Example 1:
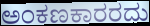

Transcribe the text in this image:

ಅಂಕಣಕಾರರದು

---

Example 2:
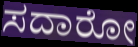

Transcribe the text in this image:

ಸದಾರೋ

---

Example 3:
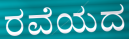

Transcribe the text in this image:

ರವೆಯದ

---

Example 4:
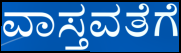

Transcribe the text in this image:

ವಾಸ್ತವತೆಗೆ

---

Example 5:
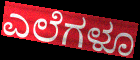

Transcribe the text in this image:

ಎಲೆಗಳೂ